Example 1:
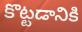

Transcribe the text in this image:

కొట్టడానికి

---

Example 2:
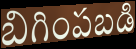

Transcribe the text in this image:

బిగింపబడి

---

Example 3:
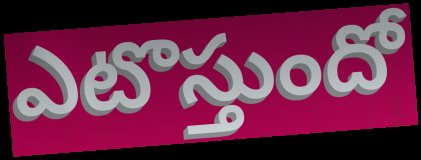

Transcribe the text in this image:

ఎటొస్తుందో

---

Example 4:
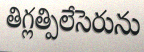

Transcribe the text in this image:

తిగ్లత్పిలేసెరును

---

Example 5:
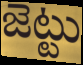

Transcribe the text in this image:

జెట్టు